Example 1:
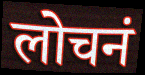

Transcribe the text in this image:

लोचनं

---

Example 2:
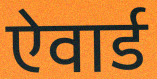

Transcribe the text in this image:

ऐवार्ड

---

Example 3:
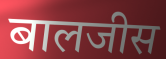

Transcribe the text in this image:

बालजीस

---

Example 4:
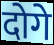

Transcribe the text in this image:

दोगे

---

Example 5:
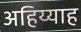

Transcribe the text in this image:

अहिय्याह